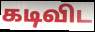
கடிவிட